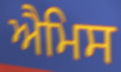
ਐਮਿਸ